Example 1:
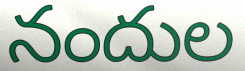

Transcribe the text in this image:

నందుల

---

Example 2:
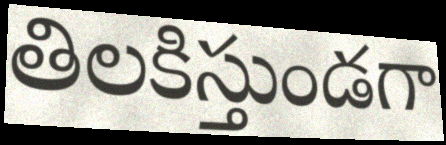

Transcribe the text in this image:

తిలకిస్తుండగా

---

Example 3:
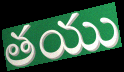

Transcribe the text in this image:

తయు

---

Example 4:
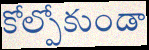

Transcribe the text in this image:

కోల్పోకుండా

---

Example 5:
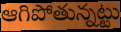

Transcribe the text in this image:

ఆగిపోతున్నట్టు